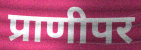
प्राणीपर